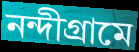
নন্দীগ্রামে